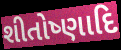
શીતોષ્ણાદિ